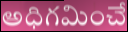
అధిగమించే